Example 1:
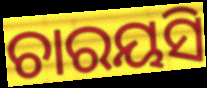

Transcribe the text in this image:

ଚାରୟସି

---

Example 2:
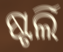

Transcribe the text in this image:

ଷ୍ଟର୍ଲି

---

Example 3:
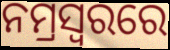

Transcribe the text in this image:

ନମ୍ରସ୍ୱରରେ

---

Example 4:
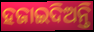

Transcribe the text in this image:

ହଜାଇଦିଅନ୍ତି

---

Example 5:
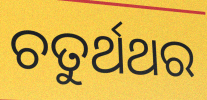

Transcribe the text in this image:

ଚତୁର୍ଥଥର